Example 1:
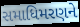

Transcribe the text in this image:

સમાધિમરણને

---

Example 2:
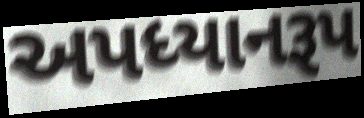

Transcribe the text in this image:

અપધ્યાનરૂપ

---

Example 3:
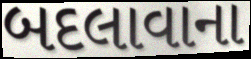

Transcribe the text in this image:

બદલાવાના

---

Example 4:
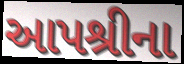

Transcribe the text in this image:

આપશ્રીના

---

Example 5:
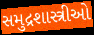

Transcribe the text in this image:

સમુદ્રશાસ્ત્રીઓ